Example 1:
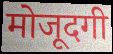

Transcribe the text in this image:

मोजूदगी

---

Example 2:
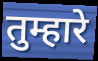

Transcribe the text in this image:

तुम्हारे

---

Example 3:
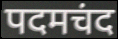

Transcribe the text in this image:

पदमचंद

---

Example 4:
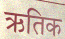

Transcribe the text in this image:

ऋतिक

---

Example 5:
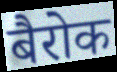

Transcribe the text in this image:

बैरोक